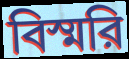
বিস্মরি